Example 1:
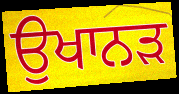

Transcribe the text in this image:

ਉਖਾਨੜ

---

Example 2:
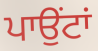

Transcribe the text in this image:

ਪਾਉਂਟਾਂ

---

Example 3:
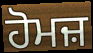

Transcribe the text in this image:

ਹੋਮਜ਼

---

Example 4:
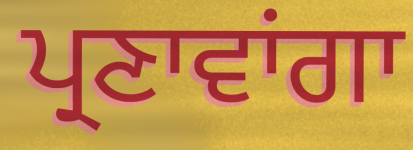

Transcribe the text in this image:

ਪ੍ਰਣਾਵਾਂਗਾ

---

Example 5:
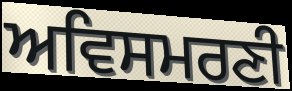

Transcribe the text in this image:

ਅਵਿਸਮਰਣੀ